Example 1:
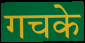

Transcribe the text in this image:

गचके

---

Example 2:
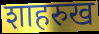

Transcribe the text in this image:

शाहरुख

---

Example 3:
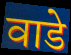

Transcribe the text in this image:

वाडे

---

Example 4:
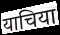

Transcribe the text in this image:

याचिया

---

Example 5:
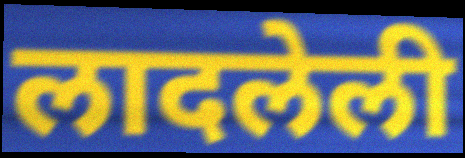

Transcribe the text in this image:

लादलेली